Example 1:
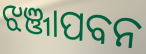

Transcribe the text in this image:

ଝଞ୍ଜାପବନ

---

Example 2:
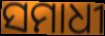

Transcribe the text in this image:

ସମାଧୀ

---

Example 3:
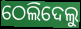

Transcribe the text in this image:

ଠେଲିଦେଲୁ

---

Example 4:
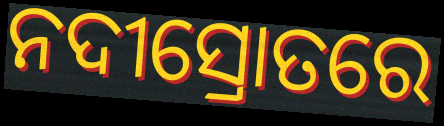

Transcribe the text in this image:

ନଦୀସ୍ରୋତରେ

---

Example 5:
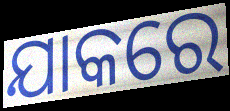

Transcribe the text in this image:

ଯାକରେ